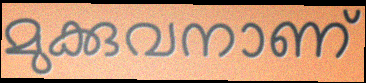
മുക്കുവനാണ്